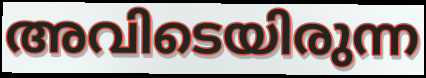
അവിടെയിരുന്ന